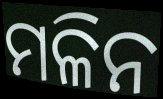
ମଳିନ